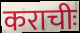
कराचीः